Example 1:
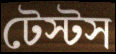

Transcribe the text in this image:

টেস্টস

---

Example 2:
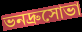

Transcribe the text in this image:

ভনদ্রুসোভা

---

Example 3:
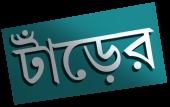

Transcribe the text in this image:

টাঁড়ের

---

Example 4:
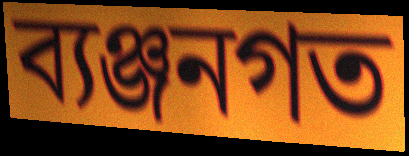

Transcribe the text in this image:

ব্যঞ্জনগত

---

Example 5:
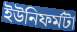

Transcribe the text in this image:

ইউনিফর্মটা